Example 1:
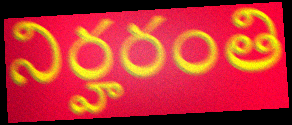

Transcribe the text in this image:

నిర్హరంతి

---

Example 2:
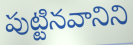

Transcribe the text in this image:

పుట్టినవానిని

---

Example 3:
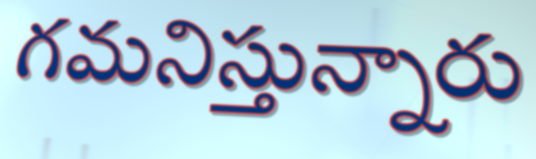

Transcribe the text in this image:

గమనిస్తున్నారు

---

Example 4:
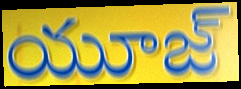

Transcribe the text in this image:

యూజ్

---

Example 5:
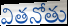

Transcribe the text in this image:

వితనోతు